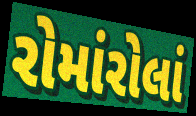
રોમાંરોલાં